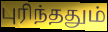
புரிந்ததும்